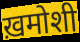
ख़मोशी